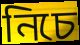
নিচে